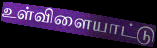
உள்விளையாட்டு